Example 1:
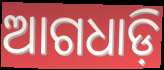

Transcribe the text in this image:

ଆଗଧାଡ଼ି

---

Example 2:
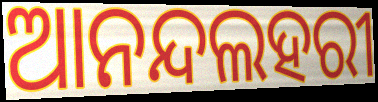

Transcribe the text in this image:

ଆନନ୍ଦଲହରୀ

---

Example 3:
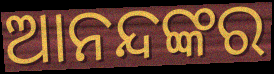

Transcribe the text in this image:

ଆନନ୍ଦଙ୍କର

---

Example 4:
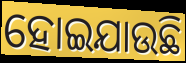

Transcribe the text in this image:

ହୋଇଯାଉଛି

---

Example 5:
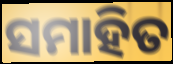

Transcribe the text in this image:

ସମାହିତ